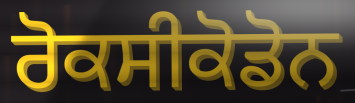
ਰੋਕਸੀਕੋਡੋਨ